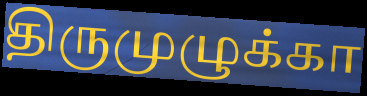
திருமுழுக்கா